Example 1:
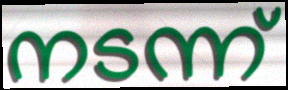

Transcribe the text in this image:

നടന്ന്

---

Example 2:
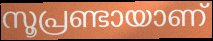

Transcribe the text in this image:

സൂപ്രണ്ടായാണ്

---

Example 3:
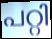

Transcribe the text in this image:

പറ്റി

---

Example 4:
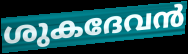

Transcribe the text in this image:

ശുകദേവൻ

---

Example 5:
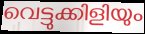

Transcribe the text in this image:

വെട്ടുക്കിളിയും